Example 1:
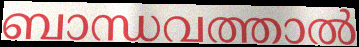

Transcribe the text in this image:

ബാന്ധവത്താൽ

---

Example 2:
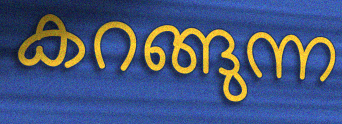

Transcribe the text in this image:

കറങ്ങുന്ന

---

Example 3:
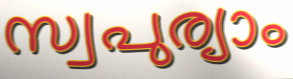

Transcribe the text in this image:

സ്വപുര്യാം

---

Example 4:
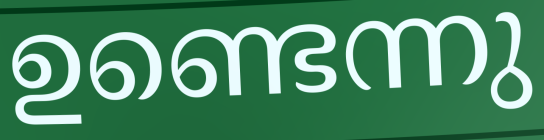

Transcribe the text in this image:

ഉണ്ടെന്നു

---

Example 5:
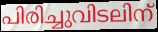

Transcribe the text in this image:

പിരിച്ചുവിടലിന്